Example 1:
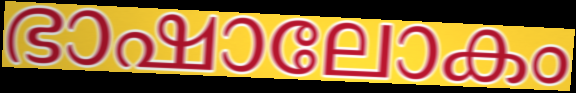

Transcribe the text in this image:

ഭാഷാലോകം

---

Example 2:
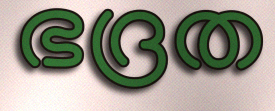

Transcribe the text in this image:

ഭദ്രത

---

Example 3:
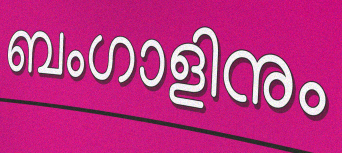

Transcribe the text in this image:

ബംഗാളിനും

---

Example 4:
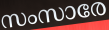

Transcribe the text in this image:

സംസാരേ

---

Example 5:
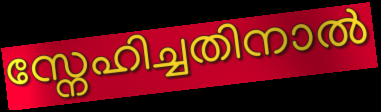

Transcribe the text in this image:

സ്നേഹിച്ചതിനാൽ